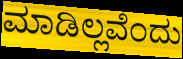
ಮಾಡಿಲ್ಲವೆಂದು